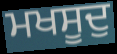
ਮਖਸੂਦੁ